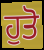
ਹੁਤੋ